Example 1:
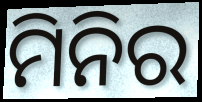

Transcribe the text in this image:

ମିନିର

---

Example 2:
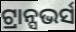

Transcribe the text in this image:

ଟ୍ରାନ୍ସଭର୍ସ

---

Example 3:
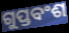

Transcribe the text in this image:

ଗୁପ୍ତବଂଶ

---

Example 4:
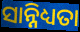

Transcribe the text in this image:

ସାନ୍ନିଧ୍ୟତା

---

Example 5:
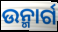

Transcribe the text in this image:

ଉନ୍ମାର୍ଗ